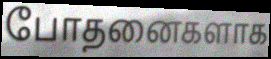
போதனைகளாக